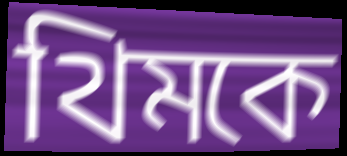
থিমকে